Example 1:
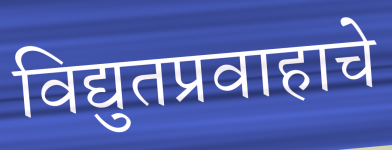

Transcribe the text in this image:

विद्युतप्रवाहाचे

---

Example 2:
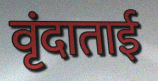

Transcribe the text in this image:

वृंदाताई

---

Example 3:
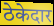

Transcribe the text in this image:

ठेकेदार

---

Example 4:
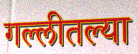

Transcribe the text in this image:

गल्लीतल्या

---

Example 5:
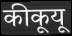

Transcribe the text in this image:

कीकूयू